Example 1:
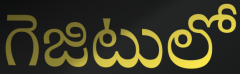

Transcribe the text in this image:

గెజిటులో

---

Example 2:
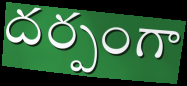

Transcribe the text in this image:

దర్పంగా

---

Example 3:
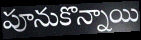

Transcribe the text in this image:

పూనుకొన్నాయి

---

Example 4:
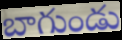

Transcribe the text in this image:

బాగుండు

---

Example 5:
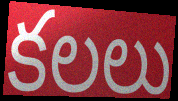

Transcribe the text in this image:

కలలు